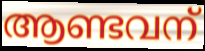
ആണ്ടവന്